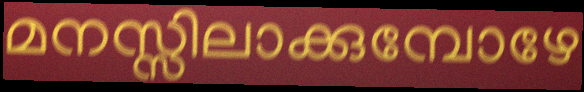
മനസ്സിലാക്കുമ്പോഴേ